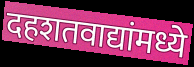
दहशतवाद्यांमध्ये